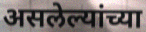
असलेल्यांच्या